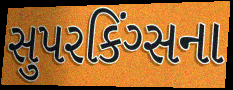
સુપરકિંગ્સના